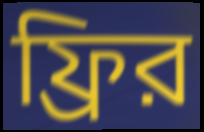
ফ্রির